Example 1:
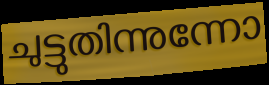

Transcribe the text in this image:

ചുട്ടുതിന്നുന്നോ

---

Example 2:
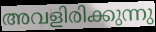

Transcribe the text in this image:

അവളിരിക്കുന്നു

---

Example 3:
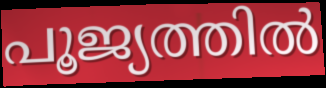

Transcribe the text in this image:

പൂജ്യത്തിൽ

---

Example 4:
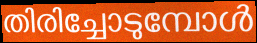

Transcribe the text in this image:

തിരിച്ചോടുമ്പോൾ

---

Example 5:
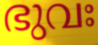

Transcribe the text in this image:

ഭുവഃ